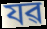
যৱ